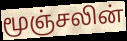
மூஞ்சலின்